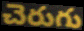
చెరుగు